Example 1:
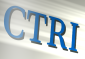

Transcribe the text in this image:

CTRI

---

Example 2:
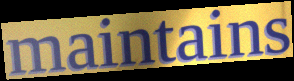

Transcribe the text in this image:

maintains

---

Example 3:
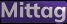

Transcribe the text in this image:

Mittag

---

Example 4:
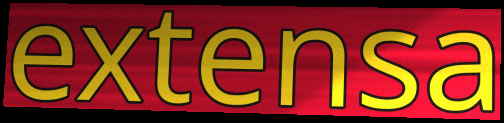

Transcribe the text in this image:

extensa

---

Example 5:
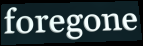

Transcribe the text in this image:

foregone